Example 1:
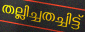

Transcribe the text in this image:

തല്ലിച്ചതച്ചിട്ട്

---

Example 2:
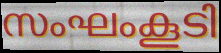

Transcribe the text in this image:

സംഘംകൂടി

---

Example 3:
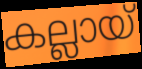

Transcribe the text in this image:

കല്ലായ്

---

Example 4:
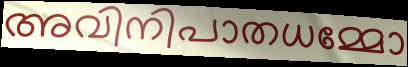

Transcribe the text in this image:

അവിനിപാതധമ്മോ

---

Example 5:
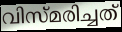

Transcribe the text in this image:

വിസ്മരിച്ചത്